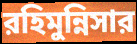
রহিমুন্নিসার